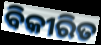
ବିକୀରିତ